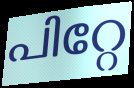
പിറ്റേ